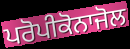
ਪਰੋਪੀਕੋਨਾਜੋਲ